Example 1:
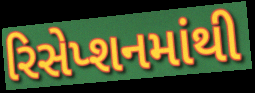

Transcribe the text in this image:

રિસેપ્શનમાંથી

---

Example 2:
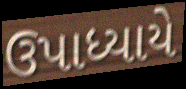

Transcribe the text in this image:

ઉપાધ્યાયે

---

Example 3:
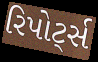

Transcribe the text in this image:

રિપોર્ટ્સ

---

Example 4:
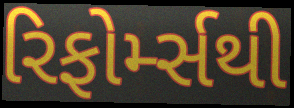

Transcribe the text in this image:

રિફોર્મ્સથી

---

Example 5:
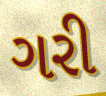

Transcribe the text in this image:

ગરી